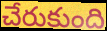
చేరుకుంది